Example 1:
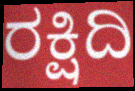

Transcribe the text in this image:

ರಕ್ಷಿದಿ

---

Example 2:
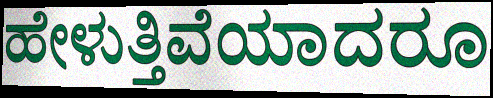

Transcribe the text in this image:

ಹೇಳುತ್ತಿವೆಯಾದರೂ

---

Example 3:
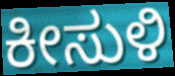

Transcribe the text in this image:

ಕೀಸುಳಿ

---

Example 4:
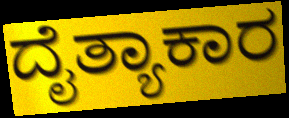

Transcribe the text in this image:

ದೈತ್ಯಾಕಾರ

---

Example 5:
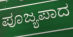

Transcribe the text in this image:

ಪೂಜ್ಯಪಾದ